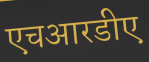
एचआरडीए